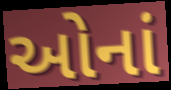
ઓનાં